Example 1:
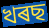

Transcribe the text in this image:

খৰছ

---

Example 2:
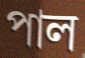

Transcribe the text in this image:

পাল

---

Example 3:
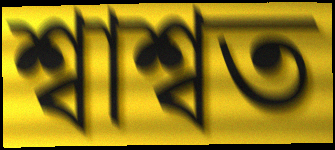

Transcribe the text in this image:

শ্বাশ্বত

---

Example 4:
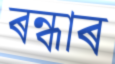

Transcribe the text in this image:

ৰন্ধাৰ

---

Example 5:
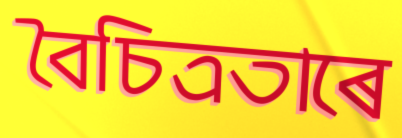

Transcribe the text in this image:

বৈচিত্ৰতাৰে